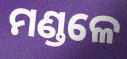
ମଣ୍ଡଳେ